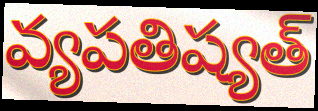
వ్యపతిష్యత్